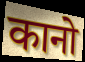
कानो